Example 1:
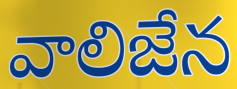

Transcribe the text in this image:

వాలిజేన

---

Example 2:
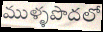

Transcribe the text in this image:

ముళ్ళపొదలో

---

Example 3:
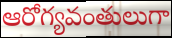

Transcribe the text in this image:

ఆరోగ్యవంతులుగా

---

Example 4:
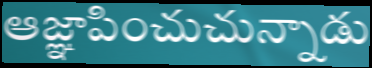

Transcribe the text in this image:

ఆజ్ఞాపించుచున్నాడు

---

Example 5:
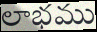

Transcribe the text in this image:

లాభము